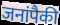
जनांपैकी